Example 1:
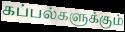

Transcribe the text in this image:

கப்பல்களுக்கும்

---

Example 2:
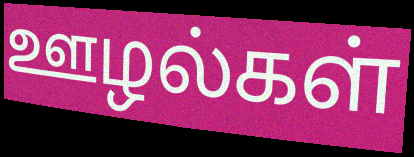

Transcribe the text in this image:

ஊழல்கள்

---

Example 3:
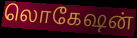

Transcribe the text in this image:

லொகேஷன்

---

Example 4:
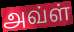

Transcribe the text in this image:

அவ்ள்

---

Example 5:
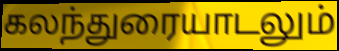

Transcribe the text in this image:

கலந்துரையாடலும்